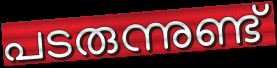
പടരുന്നുണ്ട്